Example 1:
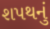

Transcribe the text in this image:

શપથનું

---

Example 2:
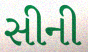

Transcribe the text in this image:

સીની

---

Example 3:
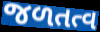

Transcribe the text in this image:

જળતત્વ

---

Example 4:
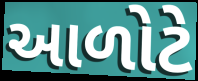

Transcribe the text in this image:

આળોટે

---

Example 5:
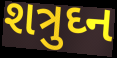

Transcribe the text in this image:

શત્રુઘ્ન